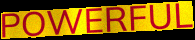
POWERFUL